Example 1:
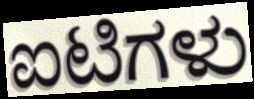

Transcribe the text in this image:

ಐಟಿಗಳು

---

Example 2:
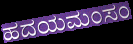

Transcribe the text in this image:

ಹದಯಮಂಸಂ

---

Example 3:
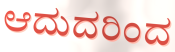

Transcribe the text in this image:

ಆದುದರಿಂದ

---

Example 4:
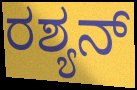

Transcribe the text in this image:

ರಶ್ಯನ್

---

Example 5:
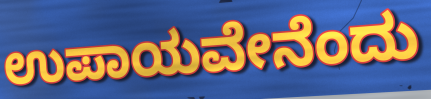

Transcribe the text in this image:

ಉಪಾಯವೇನೆಂದು